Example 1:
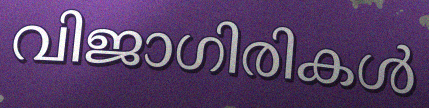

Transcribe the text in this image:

വിജാഗിരികൾ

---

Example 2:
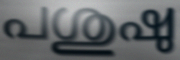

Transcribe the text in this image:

പശുഷു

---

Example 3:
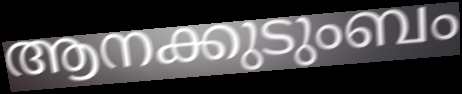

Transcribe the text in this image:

ആനക്കുടുംബം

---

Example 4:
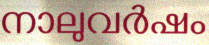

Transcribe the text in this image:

നാലുവർഷം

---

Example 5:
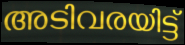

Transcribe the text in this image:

അടിവരയിട്ട്